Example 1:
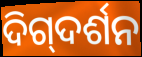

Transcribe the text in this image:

ଦିଗ୍‍ଦର୍ଶନ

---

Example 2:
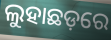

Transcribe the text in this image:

ଲୁହାଛଡ଼ରେ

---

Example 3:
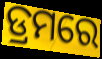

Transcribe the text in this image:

ଡ୍ରମରେ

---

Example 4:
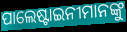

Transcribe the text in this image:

ପାଲେଷ୍ଟାଇନୀମାନଙ୍କୁ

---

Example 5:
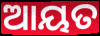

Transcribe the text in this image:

ଆୟତ